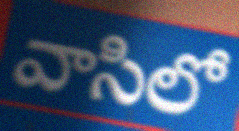
వాసిలో